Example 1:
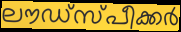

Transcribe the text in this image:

ലൗഡ്സ്പീക്കർ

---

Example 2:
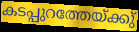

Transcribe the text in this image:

കടപ്പുറത്തേയ്ക്കു്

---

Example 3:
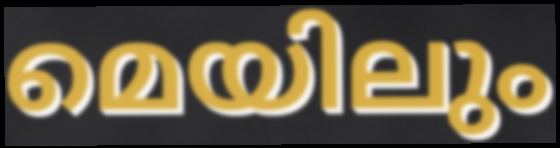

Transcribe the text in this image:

മെയിലും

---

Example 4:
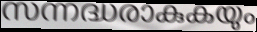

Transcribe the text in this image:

സന്നദ്ധരാകുകയും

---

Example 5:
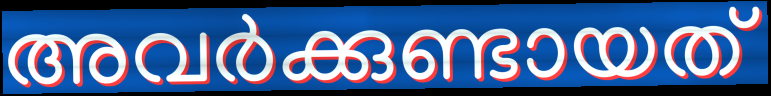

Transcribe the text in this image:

അവർക്കുണ്ടായത്